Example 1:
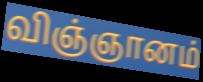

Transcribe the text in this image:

விஞ்ஞானம்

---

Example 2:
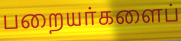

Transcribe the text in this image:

பறையர்களைப்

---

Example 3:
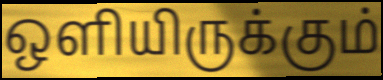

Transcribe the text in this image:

ஒளியிருக்கும்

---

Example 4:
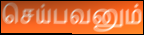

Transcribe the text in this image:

செய்பவனும்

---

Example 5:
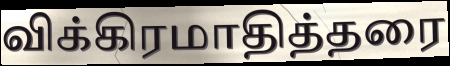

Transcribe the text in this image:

விக்கிரமாதித்தரை